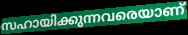
സഹായിക്കുന്നവരെയാണ്